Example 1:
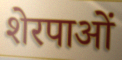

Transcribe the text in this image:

शेरपाओं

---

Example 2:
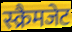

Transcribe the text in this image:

स्‍क्रैमजेट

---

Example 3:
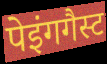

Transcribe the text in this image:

पेइंगगैस्ट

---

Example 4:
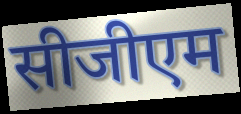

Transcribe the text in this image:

सीजीएम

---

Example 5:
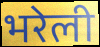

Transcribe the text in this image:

भरेली